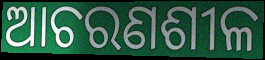
ଆଚରଣଶୀଳ